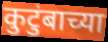
कुटुंबाच्या